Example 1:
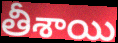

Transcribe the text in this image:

తీశాయి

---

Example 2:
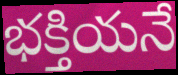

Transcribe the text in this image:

భక్తియనే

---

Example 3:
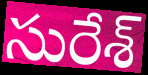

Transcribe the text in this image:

సురేశ్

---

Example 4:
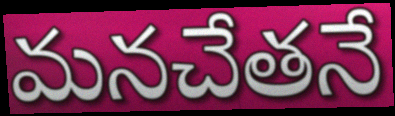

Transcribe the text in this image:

మనచేతనే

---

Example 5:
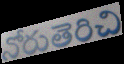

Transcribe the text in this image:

నోరుతెరిచి